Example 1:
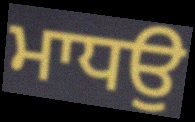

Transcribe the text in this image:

ਮਾਧਉ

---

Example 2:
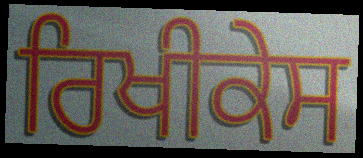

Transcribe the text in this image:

ਰਿਖੀਕੇਸ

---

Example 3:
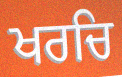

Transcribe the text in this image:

ਖਰਚਿ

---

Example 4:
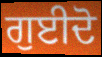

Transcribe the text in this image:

ਗੁਈਦੋ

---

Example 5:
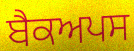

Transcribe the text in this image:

ਬੈਕਅਪਸ